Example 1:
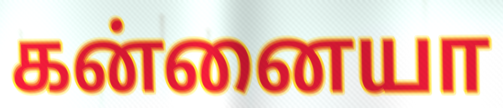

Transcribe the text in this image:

கன்னையா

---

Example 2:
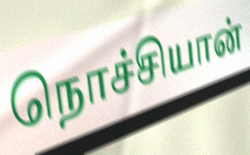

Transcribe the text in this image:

நொச்சியான்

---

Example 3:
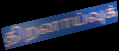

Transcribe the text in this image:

திறனாய்வுக்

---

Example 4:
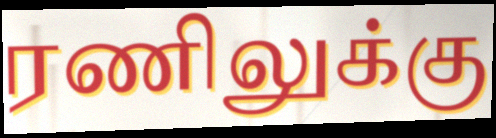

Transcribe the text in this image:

ரணிலுக்கு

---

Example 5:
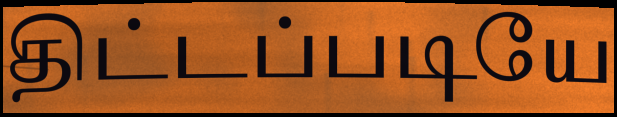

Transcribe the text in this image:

திட்டப்படியே